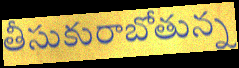
తీసుకురాబోతున్న